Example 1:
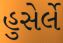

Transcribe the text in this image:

હુસેર્લે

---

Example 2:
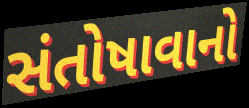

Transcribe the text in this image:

સંતોષાવાનો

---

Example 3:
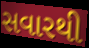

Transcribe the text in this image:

સવારથી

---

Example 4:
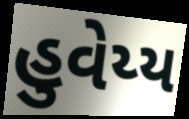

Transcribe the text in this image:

હુવેય્ય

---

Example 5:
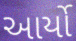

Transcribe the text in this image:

આર્યો